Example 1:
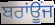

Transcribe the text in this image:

ਬਰਾਂਊਂਜ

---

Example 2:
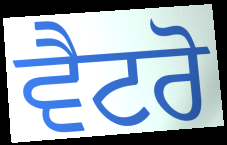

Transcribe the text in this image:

ਵੈਟਰੋ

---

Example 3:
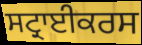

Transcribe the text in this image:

ਸਟ੍ਰਾਈਕਰਸ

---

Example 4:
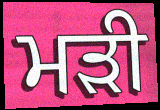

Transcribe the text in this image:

ਮੜੀ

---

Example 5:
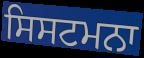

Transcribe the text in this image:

ਸਿਸਟਮਨਾ